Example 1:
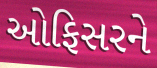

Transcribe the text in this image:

ઓફિસરને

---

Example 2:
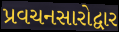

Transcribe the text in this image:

પ્રવચનસારોદ્વાર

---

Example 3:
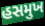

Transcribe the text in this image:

હસમુખ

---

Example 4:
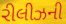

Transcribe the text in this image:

રીલીઝની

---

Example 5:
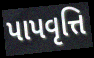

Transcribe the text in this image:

પાપવૃત્તિ